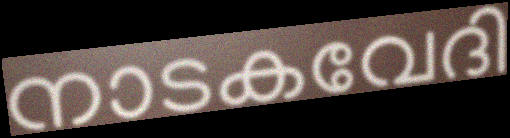
നാടകവേദി